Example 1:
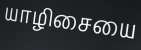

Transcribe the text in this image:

யாழிசையை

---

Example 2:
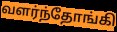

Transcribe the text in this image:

வளர்ந்தோங்கி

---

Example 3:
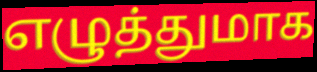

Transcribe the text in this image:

எழுத்துமாக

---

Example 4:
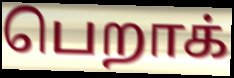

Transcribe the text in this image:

பெறாக்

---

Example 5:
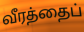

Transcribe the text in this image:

வீரத்தைப்